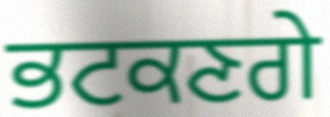
ਭਟਕਣਗੇ